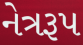
નેત્રરૂપ